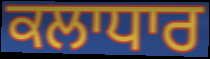
ਕਲਾਧਾਰ